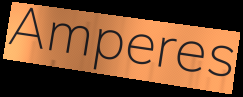
Amperes